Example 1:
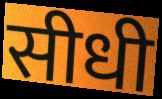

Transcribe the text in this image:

सीधी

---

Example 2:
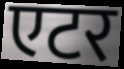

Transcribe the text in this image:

एटर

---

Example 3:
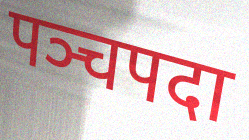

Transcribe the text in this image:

पञ्चपदा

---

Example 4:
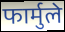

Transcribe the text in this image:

फार्मुले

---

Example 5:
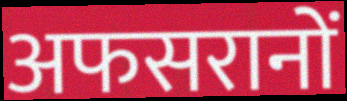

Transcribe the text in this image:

अफसरानों